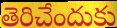
తెరిచేందుకు